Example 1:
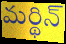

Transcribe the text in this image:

మర్థిన్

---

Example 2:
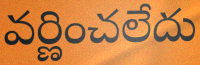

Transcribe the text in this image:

వర్ణించలేదు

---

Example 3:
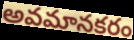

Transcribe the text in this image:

అవమానకరం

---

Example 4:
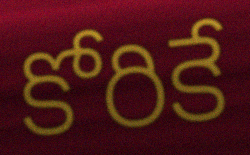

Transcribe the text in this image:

కోరికే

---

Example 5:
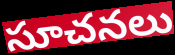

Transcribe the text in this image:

సూచనలు